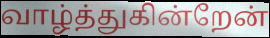
வாழ்த்துகின்றேன்